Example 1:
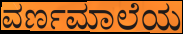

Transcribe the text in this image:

ವರ್ಣಮಾಲೆಯ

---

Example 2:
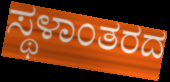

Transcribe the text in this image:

ಸ್ಥಳಾಂತರದ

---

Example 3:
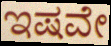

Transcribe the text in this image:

ಇಷವೇ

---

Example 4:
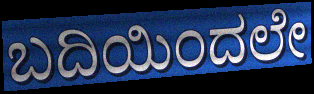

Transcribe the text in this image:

ಬದಿಯಿಂದಲೇ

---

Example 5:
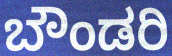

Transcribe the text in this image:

ಬೌಂಡರಿ